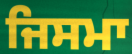
ਜਿਸਮਾ